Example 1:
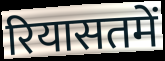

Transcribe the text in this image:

रियासतमें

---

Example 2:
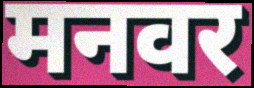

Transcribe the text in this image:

मनवर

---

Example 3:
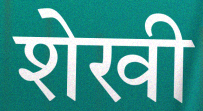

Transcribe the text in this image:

शेखी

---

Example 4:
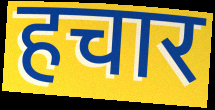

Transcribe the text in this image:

हचार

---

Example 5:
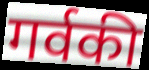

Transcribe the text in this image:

गर्वकी